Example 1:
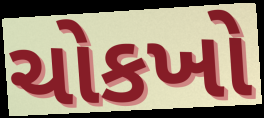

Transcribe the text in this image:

ચોકખો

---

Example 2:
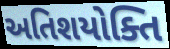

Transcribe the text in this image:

અતિશયોક્તિ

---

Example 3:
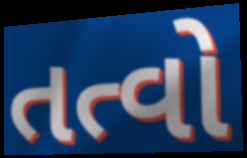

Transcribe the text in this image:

તત્વો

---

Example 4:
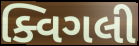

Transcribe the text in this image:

ક્વિગલી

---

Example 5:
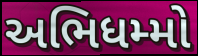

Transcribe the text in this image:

અભિધમ્મો